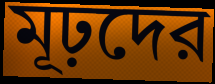
মূঢ়দের